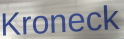
Kroneck